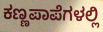
ಕಣ್ಣಪಾಪೆಗಳಲ್ಲಿ